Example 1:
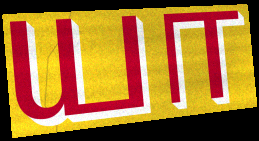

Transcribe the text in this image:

யா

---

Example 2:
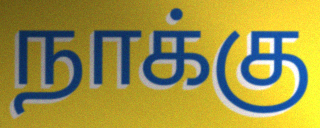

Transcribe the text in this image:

நாக்கு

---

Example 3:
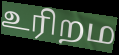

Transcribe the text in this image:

உரிறம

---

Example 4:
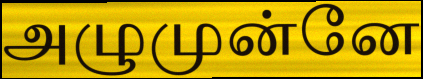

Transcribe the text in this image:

அழுமுன்னே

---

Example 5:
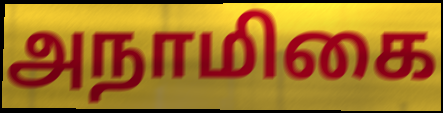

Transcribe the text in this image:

அநாமிகை